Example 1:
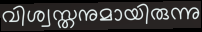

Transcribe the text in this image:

വിശ്വസ്തനുമായിരുന്നു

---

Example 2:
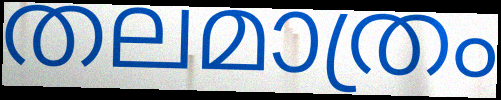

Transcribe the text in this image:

തലമാത്രം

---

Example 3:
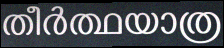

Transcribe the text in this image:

തീർത്ഥയാത്ര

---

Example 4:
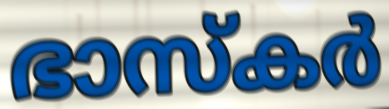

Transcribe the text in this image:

ഭാസ്കർ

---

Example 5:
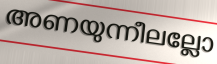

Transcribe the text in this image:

അണയുന്നീലല്ലോ